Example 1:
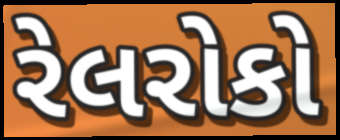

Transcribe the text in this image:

રેલરોકો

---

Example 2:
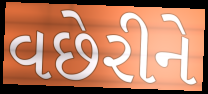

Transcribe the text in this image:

વછેરીને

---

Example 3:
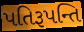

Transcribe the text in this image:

પતિરૂપન્તિ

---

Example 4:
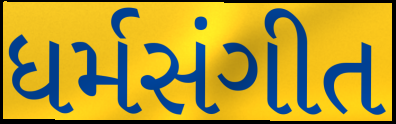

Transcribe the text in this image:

ધર્મસંગીત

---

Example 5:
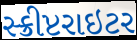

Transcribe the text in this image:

સ્ક્રીપ્ટરાઇટર